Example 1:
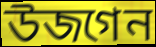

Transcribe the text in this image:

উজগেন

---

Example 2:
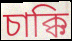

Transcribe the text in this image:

চাক্কি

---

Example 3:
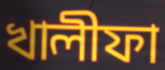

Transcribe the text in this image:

খালীফা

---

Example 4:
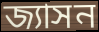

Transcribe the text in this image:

জ্যাসন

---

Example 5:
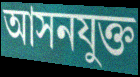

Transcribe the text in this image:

আসনযুক্ত